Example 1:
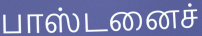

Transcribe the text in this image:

பாஸ்டனைச்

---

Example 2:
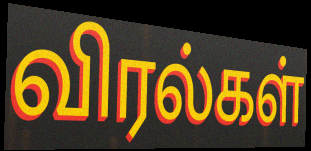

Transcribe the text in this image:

விரல்கள்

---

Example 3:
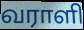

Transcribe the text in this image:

வராளி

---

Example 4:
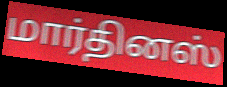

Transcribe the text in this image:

மார்தினஸ்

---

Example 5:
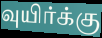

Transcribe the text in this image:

வுயிர்க்கு